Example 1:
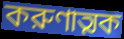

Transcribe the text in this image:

করুণাত্মক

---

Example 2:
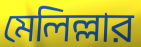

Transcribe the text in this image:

মেলিল্লার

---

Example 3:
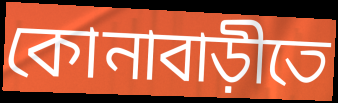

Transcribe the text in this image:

কোনাবাড়ীতে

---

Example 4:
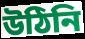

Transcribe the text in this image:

উঠিনি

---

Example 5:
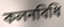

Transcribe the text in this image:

কলনবিধি